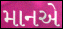
માનએ